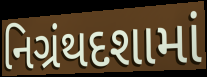
નિગ્રંથદશામાં